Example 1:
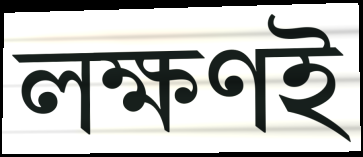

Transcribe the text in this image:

লক্ষণই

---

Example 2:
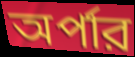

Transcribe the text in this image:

অর্পার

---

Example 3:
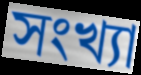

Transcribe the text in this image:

সংখ্যা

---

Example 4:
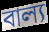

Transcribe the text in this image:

বাল্য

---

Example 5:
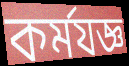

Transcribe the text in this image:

কর্মযজ্ঞ